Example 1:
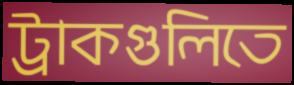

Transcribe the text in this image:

ট্রাকগুলিতে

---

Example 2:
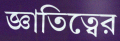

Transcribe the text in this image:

জ্ঞাতিত্বের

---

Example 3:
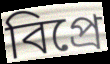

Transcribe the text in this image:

বিপ্রে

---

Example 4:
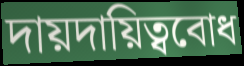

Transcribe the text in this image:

দায়দায়িত্ববোধ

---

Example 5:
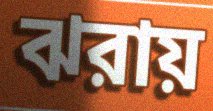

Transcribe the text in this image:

ঝরায়